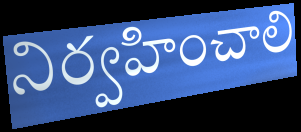
నిర్వహించాలి